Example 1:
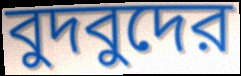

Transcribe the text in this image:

বুদবুদের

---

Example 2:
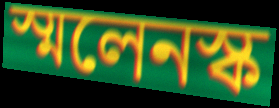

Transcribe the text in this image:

স্মলেনস্ক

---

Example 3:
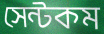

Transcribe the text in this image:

সেন্টকম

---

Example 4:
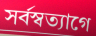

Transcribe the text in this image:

সর্বস্বত্যাগে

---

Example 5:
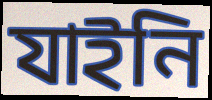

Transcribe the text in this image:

যাইনি